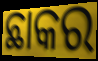
ଛାକର